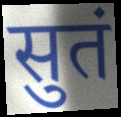
सुतं